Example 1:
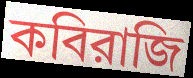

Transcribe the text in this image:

কবিরাজি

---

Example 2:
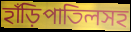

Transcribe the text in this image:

হাঁড়িপাতিলসহ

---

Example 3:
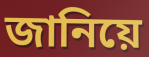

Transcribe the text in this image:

জানিয়ে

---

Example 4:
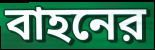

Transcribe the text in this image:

বাহনের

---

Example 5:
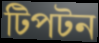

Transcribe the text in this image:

টিপটন